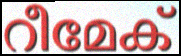
റീമേക്